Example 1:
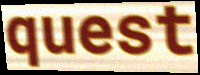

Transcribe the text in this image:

quest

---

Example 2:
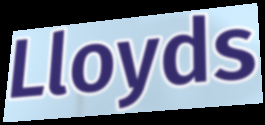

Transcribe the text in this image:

Lloyds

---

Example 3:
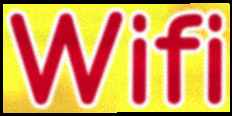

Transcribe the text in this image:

Wifi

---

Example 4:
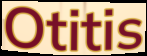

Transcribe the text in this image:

Otitis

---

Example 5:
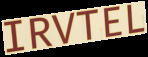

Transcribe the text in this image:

IRVTEL